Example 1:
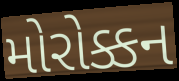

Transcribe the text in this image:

મોરોક્કન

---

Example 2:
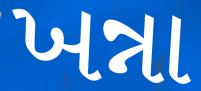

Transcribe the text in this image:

ખન્ના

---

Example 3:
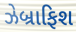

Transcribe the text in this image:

ઝેબ્રાફિશ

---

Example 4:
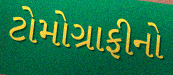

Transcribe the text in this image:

ટોમોગ્રાફીનો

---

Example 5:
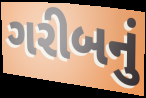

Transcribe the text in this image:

ગરીબનું